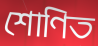
শোণিত